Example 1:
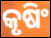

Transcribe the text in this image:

କୃଷିଂ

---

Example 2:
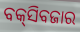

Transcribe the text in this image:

ବକ୍‌ସିବଜାର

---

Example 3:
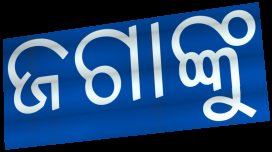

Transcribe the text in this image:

ଜଗାଙ୍କୁ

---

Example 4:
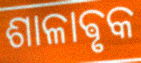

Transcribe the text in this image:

ଶାଳାଵୃକ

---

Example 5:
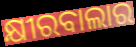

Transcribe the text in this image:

କ୍ଷୀରବାଲାର